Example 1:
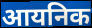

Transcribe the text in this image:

आयनिक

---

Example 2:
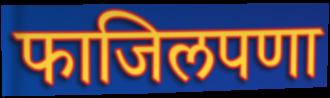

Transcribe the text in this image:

फाजिलपणा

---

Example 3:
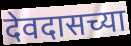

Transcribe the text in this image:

देवदासच्या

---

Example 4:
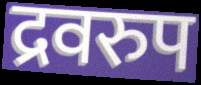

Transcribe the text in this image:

द्रवरुप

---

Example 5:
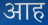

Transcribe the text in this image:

आह